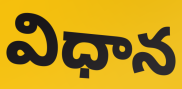
విధాన